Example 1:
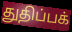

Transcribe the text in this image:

துதிப்பக்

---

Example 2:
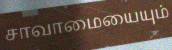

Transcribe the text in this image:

சாவாமையையும்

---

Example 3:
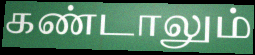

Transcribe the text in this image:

கண்டாலும்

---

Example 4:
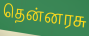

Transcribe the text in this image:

தென்னரசு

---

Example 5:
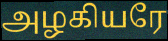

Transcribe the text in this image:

அழகியரே